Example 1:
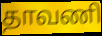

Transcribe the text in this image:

தாவணி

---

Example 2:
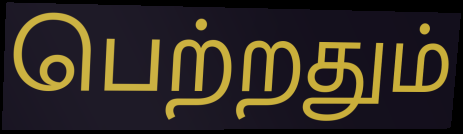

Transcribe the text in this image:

பெற்றதும்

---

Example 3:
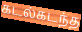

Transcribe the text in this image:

கடல்கடந்த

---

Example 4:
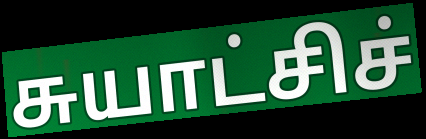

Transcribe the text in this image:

சுயாட்சிச்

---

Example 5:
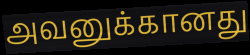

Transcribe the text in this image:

அவனுக்கானது